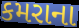
કમરાના